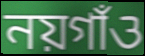
নয়গাঁও